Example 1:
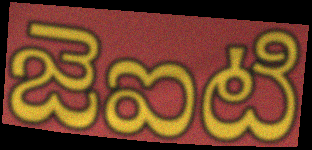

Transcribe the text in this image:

జెఐటి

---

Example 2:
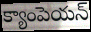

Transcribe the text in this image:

క్యాంపెయన్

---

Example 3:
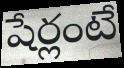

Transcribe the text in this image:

షేర్లంటే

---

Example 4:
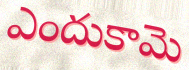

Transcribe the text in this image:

ఎందుకామె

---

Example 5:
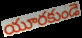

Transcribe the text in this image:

యూరకుండె